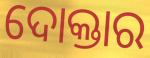
ଦୋକ୍ତାର